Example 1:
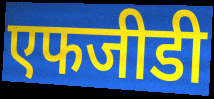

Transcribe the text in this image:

एफजीडी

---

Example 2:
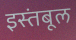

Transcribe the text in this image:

इस्तंबूल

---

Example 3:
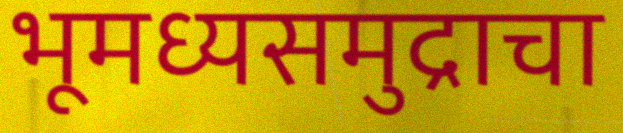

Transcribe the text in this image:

भूमध्यसमुद्राचा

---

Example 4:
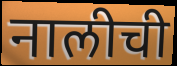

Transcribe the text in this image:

नालीची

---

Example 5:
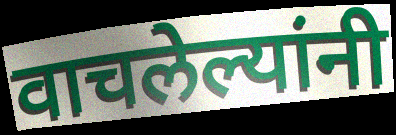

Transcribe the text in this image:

वाचलेल्यांनी